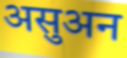
असुअन